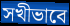
সখীভাবে